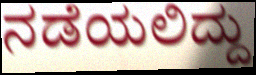
ನಡೆಯಲಿದ್ದು